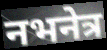
नभनेत्र